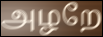
அழறே